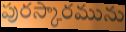
పురస్కారమును